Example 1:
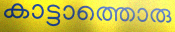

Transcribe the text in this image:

കാട്ടാത്തൊരു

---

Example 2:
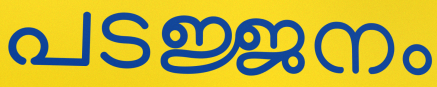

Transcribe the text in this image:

പടജ്ജനം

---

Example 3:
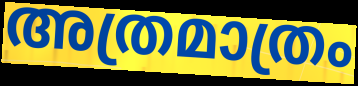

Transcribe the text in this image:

അത്രമാത്രം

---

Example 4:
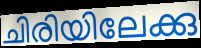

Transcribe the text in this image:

ചിരിയിലേക്കു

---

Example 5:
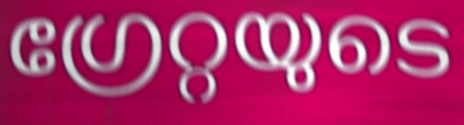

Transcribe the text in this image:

ഗ്രേറ്റയുടെ